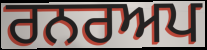
ਰਨਰਅਪ